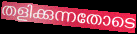
തളിക്കുന്നതോടെ